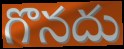
గొనదు